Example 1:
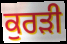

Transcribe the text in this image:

ਕੁਰੜੀ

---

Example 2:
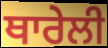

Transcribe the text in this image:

ਥਾਰੇਲੀ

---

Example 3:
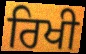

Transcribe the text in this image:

ਰਿਖੀ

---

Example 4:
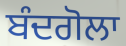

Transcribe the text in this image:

ਬੰਦਗੋਲਾ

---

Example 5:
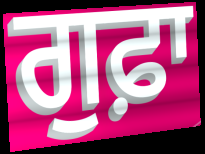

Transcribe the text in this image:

ਗੁਫ਼ਾ